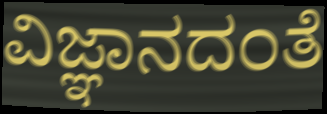
ವಿಜ್ಞಾನದಂತೆ